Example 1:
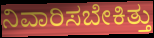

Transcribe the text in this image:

ನಿವಾರಿಸಬೇಕಿತ್ತು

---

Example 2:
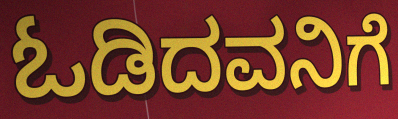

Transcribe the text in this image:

ಓಡಿದವನಿಗೆ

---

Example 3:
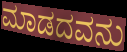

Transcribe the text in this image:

ಮಾಡದವನು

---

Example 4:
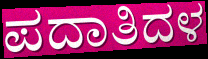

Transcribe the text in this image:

ಪದಾತಿದಳ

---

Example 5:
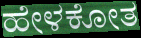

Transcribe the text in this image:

ಹೇಳಕೋತ